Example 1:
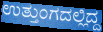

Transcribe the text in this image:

ಉತ್ತುಂಗದಲ್ಲಿದ್ದ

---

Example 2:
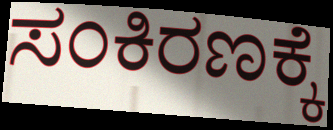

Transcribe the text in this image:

ಸಂಕಿರಣಕ್ಕೆ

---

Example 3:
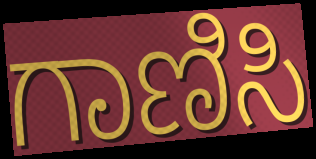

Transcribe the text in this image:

ಗಾಣಿಸಿ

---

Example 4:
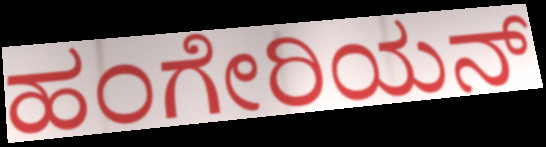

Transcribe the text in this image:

ಹಂಗೇರಿಯನ್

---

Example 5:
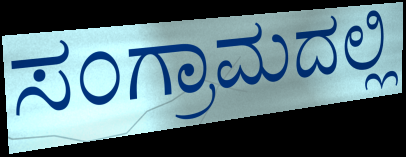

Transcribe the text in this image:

ಸಂಗ್ರಾಮದಲ್ಲಿ